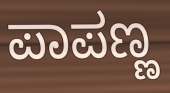
ಪಾಪಣ್ಣ